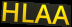
HLAA